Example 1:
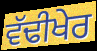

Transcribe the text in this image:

ਵੱਢੀਖੇਰ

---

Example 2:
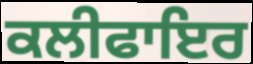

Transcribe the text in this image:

ਕਲੀਫਾਇਰ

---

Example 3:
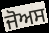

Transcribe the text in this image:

ਜੋਅਸ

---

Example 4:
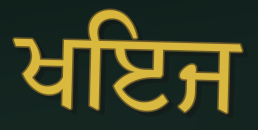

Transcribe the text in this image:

ਖਇਜ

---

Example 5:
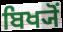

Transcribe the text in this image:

ਬਿਖ੍ਯੋਂ